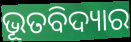
ଭୂତବିଦ୍ୟାର